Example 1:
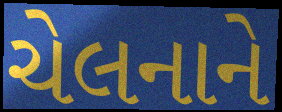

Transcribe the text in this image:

ચેલનાને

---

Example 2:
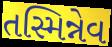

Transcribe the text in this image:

તસ્મિન્નેવ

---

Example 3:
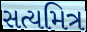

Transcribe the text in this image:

સત્યમિત્ર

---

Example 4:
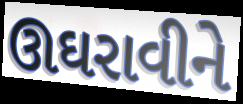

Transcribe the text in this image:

ઊઘરાવીને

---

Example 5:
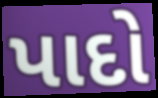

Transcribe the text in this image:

પાદો